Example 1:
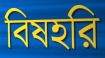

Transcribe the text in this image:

বিষহরি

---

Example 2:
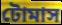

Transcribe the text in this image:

টোমাস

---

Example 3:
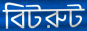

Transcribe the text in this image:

বিটরুট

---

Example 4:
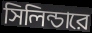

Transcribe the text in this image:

সিলিন্ডারে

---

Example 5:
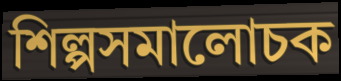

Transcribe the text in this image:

শিল্পসমালোচক